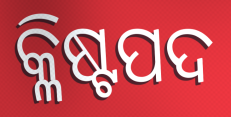
କ୍ଳିଷ୍ଟପଦ